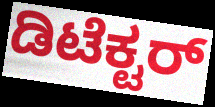
ಡಿಟೆಕ್ಟರ್